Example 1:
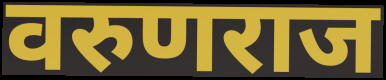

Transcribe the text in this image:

वरुणराज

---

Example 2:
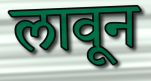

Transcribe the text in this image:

लावून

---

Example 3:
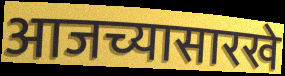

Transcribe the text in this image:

आजच्यासारखे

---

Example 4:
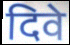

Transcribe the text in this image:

दिवे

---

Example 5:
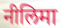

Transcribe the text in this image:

नीलिमा